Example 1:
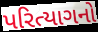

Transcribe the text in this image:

પરિત્યાગનો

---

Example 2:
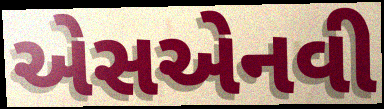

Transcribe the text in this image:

એસએનવી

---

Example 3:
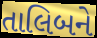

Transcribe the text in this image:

તાલિબને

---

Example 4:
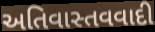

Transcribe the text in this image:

અતિવાસ્તવવાદી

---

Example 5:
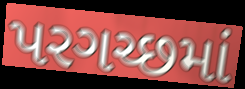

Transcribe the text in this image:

પરગચ્છમાં